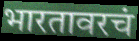
भारतावरचं